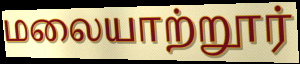
மலையாற்றூர்